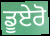
ਡੂਏਰੋ